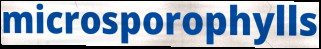
microsporophylls